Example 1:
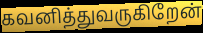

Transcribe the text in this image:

கவனித்துவருகிறேன்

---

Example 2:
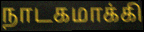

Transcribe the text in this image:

நாடகமாக்கி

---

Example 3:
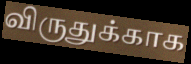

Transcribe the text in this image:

விருதுக்காக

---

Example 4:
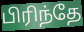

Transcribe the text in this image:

பிரிந்தே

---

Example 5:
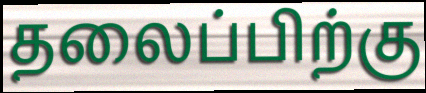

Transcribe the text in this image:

தலைப்பிற்கு